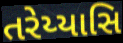
તરેય્યાસિ